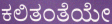
ಕಲಿತಂತೆಯೇ